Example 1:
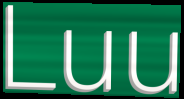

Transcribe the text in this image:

Luu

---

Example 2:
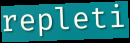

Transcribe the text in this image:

repleti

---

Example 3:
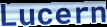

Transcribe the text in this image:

Lucern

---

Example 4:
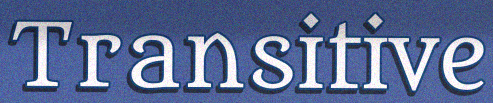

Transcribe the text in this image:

Transitive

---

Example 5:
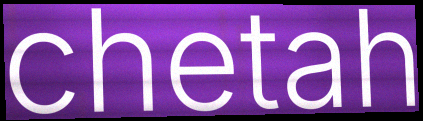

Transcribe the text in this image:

chetah